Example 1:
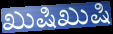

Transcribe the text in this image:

ಖುಷಿಖುಷಿ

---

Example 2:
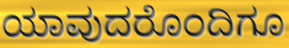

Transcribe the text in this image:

ಯಾವುದರೊಂದಿಗೂ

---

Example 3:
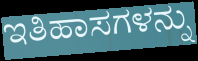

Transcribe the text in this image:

ಇತಿಹಾಸಗಳನ್ನು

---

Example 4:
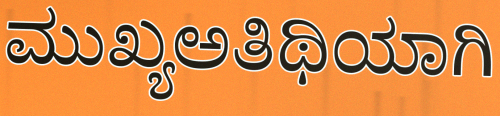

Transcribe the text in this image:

ಮುಖ್ಯಅತಿಥಿಯಾಗಿ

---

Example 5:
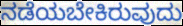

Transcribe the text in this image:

ನಡೆಯಬೇಕಿರುವುದು